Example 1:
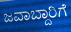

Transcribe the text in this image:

ಜವಾಬ್ದಾರಿಗೆ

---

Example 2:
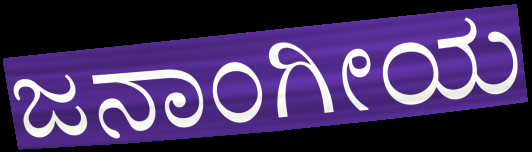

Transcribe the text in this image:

ಜನಾಂಗೀಯ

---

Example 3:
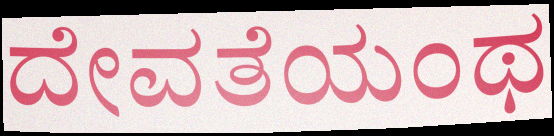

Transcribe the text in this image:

ದೇವತೆಯಂಥ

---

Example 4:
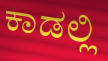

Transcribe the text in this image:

ಕಾಡಲ್ಲಿ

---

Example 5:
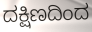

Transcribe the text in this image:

ದಕ್ಷಿಣದಿಂದ